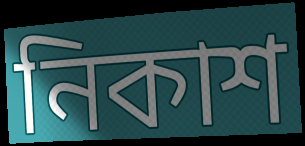
নিকাশ